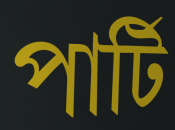
পাৰ্টি